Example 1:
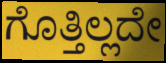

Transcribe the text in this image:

ಗೊತ್ತಿಲ್ಲದೇ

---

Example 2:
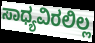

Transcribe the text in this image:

ಸಾಧ್ಯವಿರಲಿಲ್ಲ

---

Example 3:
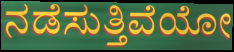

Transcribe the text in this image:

ನಡೆಸುತ್ತಿವೆಯೋ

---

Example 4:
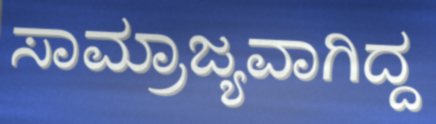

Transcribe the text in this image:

ಸಾಮ್ರಾಜ್ಯವಾಗಿದ್ದ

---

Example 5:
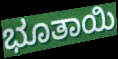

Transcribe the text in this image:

ಭೂತಾಯಿ